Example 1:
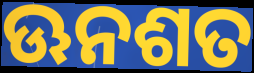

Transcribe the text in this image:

ଊନଶତ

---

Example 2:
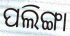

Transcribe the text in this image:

ପଲିଙ୍ଗା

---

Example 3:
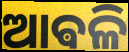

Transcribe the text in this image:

ଆଵଳି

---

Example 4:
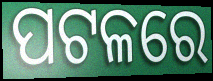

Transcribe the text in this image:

ପଟଳରେ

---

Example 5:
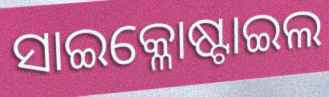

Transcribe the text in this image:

ସାଇକ୍ଳୋଷ୍ଟାଇଲ